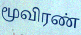
மூவிரண்